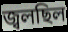
জ্বলছিল